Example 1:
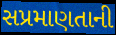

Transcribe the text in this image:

સપ્રમાણતાની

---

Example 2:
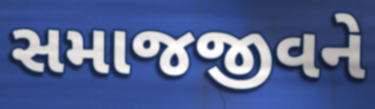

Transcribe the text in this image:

સમાજજીવને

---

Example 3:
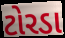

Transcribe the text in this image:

ટોરડા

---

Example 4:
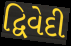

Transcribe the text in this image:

દ્વિવેદી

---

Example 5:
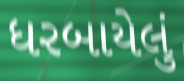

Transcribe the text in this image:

ધરબાયેલું